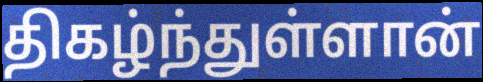
திகழ்ந்துள்ளான்